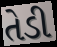
તેડી